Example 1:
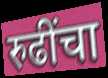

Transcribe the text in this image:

रुढींचा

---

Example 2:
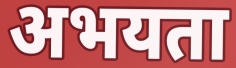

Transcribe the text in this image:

अभयता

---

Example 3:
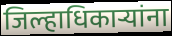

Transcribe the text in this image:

जिल्हाधिकाऱ्यांना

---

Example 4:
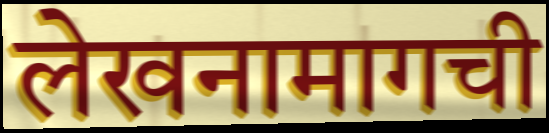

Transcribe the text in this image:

लेखनामागची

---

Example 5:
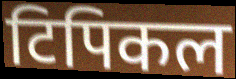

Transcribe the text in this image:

टिपिकल